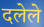
दलेले